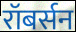
रॉबर्सन